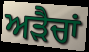
ਅੜੈਚਾਂ